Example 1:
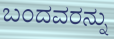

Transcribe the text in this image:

ಬಂದವರನ್ನು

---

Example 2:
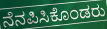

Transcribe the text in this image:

ನೆನಪಿಸಿಕೊಂಡರು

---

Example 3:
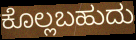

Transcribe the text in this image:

ಕೊಲ್ಲಬಹುದು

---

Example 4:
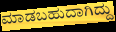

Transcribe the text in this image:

ಮಾಡಬಹುದಾಗಿದ್ದು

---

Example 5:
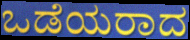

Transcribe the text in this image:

ಒಡೆಯರಾದ